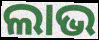
ଲାଭ